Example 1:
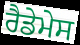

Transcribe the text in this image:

ਰੈਡੇਮੇਸ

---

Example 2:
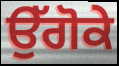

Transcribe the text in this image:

ਉੱਗੋਕੇ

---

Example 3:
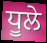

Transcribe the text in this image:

ਧੂਲੇ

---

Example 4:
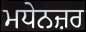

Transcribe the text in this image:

ਮਧੇਨਜ਼ਰ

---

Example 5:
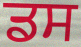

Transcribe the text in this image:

ਡਸ